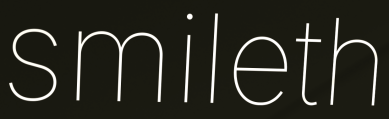
smileth